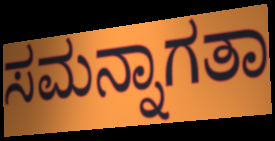
ಸಮನ್ನಾಗತಾ